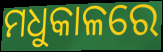
ମଧୁକାଳରେ